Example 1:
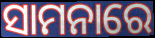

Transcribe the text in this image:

ସାମନାରେ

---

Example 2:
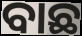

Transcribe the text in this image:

ବାଛ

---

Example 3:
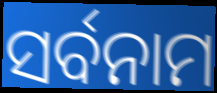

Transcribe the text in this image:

ସର୍ବନାମ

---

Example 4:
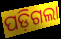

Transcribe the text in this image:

ପଡ଼ିଗଲା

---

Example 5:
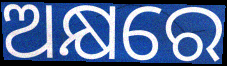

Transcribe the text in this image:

ଅକ୍ଷରେ